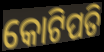
କୋଟିପତି